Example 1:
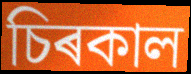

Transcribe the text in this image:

চিৰকাল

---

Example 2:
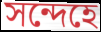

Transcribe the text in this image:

সন্দেহে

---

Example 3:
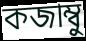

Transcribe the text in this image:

কজাম্বু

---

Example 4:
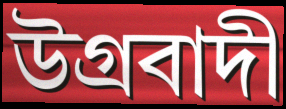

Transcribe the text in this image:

উগ্ৰবাদী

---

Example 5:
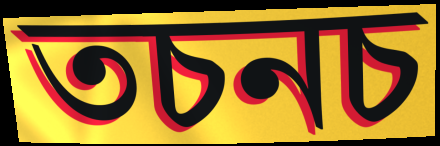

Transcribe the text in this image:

তচনচ